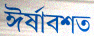
ঈর্ষাবশত